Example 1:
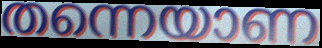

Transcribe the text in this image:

തന്നെയാണ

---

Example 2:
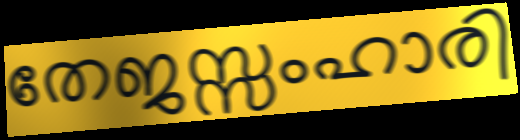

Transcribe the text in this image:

തേജസ്സംഹാരി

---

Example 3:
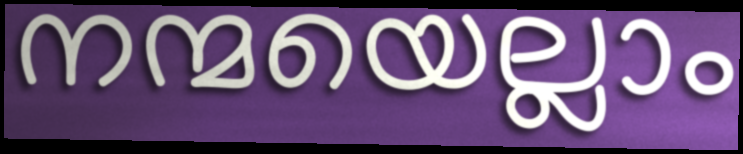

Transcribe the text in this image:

നന്മയെല്ലാം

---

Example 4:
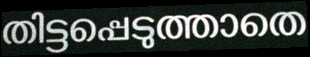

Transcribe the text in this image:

തിട്ടപ്പെടുത്താതെ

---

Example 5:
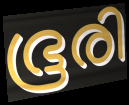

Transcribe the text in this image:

ഭൂരി